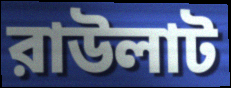
রাউলাট